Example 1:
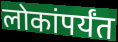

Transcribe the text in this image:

लोकांपर्यंत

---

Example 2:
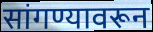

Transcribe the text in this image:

सांगण्यावरून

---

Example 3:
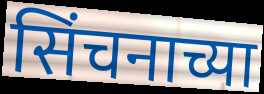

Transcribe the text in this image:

सिंचनाच्या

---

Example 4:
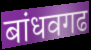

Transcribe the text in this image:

बांधवगढ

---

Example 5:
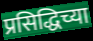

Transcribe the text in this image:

प्रसिद्धिच्या